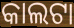
କାଲଟା